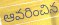
ఆవరించిన